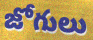
జోగులు